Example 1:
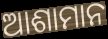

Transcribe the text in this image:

ଆଶାମାନ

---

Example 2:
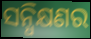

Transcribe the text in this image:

ସନ୍ଧିକ୍ଷଣର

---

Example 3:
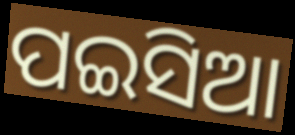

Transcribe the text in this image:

ପଇସିଆ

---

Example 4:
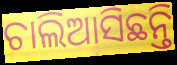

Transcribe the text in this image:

ଚାଲିଆସିଛନ୍ତି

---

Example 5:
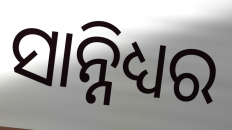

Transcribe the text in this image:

ସାନ୍ନିଧ୍ୟର